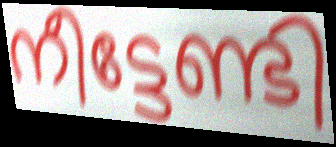
നീട്ടേണ്ടി